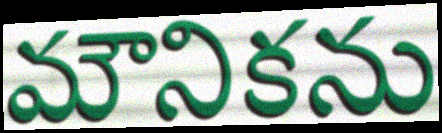
మౌనికను